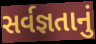
સર્વજ્ઞતાનું